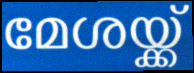
മേശയ്ക്ക്